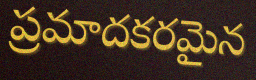
ప్రమాదకరమైన